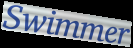
Swimmer